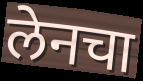
लेनचा